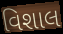
વિશાલ